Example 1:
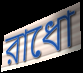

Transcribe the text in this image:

রাধো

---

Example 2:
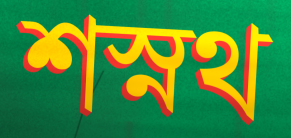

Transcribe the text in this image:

শস্নথ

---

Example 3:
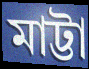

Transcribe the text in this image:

মাট্টা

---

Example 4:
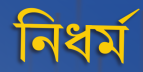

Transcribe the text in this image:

নিধর্ম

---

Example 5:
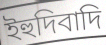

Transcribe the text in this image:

ইহুদিবাদি